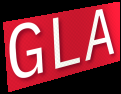
GLA